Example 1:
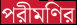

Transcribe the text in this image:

পরীমণির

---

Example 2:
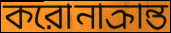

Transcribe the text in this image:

করোনাক্রান্ত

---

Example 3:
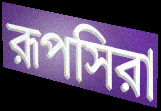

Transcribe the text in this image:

রূপসিরা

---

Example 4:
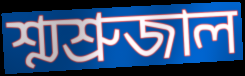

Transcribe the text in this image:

শ্মশ্রুজাল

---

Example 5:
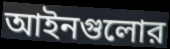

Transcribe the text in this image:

আইনগুলোর